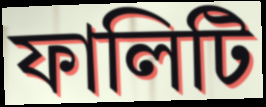
ফালিটি